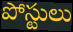
పోస్టులు